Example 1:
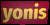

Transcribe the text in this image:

yonis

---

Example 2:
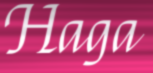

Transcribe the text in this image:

Haga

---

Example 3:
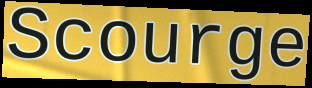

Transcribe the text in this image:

Scourge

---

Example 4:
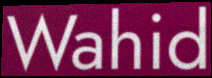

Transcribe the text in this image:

Wahid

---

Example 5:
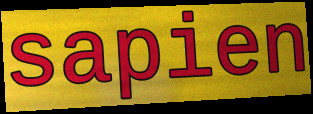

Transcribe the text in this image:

sapien